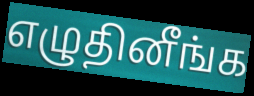
எழுதினீங்க